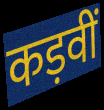
कड़वीं